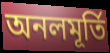
অনলমূর্তি